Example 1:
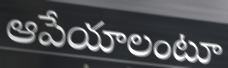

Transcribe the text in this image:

ఆపేయాలంటూ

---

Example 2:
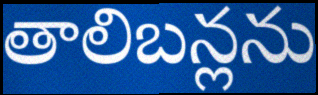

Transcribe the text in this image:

తాలిబన్లను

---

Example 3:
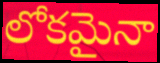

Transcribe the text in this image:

లోకమైనా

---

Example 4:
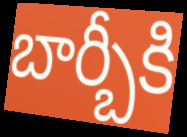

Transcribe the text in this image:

బార్బీకి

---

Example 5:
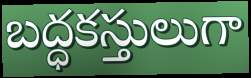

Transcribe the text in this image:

బద్ధకస్తులుగా